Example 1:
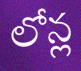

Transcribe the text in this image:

లోన్ల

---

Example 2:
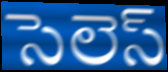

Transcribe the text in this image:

సెలెస్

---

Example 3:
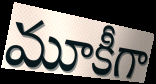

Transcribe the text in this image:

మూకీగా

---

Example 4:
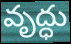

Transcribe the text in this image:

వృద్ధు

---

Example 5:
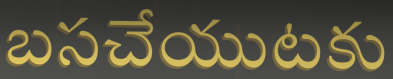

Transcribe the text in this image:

బసచేయుటకు